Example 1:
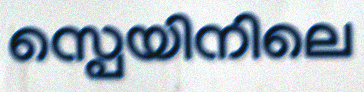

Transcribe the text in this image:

സ്പെയിനിലെ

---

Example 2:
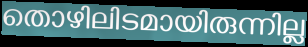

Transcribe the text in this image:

തൊഴിലിടമായിരുന്നില്ല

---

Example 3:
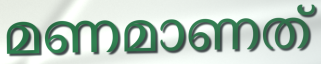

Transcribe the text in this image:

മണമാണത്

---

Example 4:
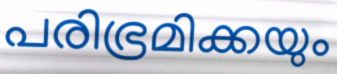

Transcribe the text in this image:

പരിഭ്രമിക്കയും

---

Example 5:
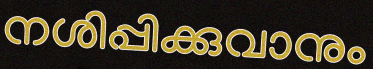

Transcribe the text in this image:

നശിപ്പിക്കുവാനും